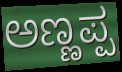
ಅಣ್ಣಪ್ಪ